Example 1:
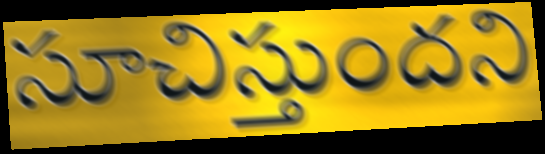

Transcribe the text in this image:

సూచిస్తుందని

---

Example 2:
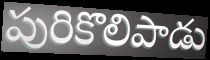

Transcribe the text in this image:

పురికొలిపాడు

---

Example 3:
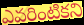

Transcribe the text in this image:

ఎవరింటికని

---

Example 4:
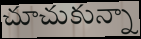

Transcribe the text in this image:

చూచుకున్నా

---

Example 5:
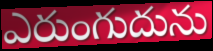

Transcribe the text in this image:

ఎరుంగుదును